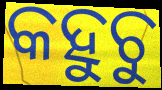
କହୁଚୁ